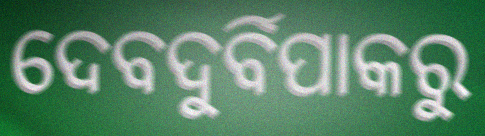
ଦେବଦୁର୍ବିପାକରୁ